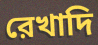
রেখাদি